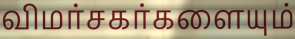
விமர்சகர்களையும்